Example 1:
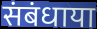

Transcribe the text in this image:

संबंधाया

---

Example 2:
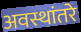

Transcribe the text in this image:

अवस्थांतरे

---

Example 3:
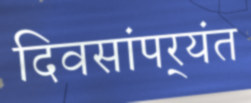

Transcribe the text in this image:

दिवसांपर्यंत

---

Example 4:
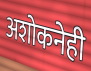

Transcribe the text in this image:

अशोकनेही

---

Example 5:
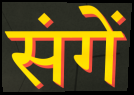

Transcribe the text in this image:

संगें